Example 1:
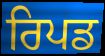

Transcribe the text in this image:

ਰਿਪਡ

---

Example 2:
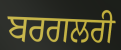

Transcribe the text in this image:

ਬਰਗਲਰੀ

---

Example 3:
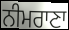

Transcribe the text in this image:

ਨੀਮਰਾਣਾ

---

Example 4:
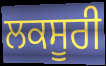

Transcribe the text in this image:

ਲਕਸੂਰੀ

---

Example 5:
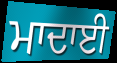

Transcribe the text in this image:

ਮਾਦਾਈ